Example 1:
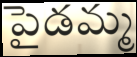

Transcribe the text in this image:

పైడమ్మ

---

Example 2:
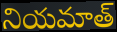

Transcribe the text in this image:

నియమాత్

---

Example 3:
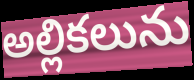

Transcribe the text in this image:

అల్లికలును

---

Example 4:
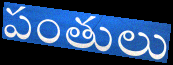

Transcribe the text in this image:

పంతులు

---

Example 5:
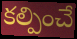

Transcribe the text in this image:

కల్పించే